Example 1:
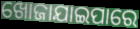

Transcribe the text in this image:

ଖୋଜାଯାଇପାରେ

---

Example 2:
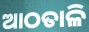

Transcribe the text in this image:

ଆଠତାଳି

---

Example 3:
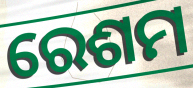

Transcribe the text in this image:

ରେଶମ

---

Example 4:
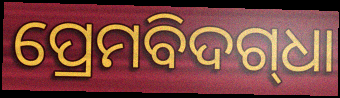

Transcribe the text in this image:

ପ୍ରେମବିଦଗ୍‍ଧା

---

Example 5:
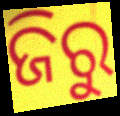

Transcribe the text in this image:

ଜିରୁ